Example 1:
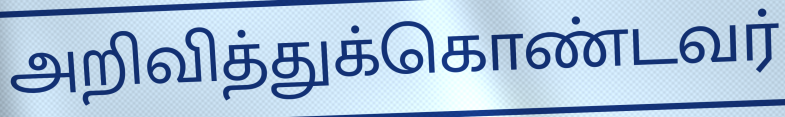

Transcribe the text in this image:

அறிவித்துக்கொண்டவர்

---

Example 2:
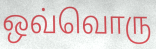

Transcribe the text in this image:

ஒவ்வொரு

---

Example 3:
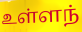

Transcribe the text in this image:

உள்ளந்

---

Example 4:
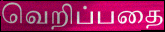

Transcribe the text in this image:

வெறிப்பதை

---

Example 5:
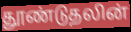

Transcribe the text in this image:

தூண்டுதலின்